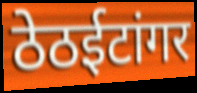
ठेठईटांगर